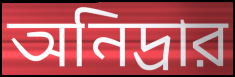
অনিদ্রার